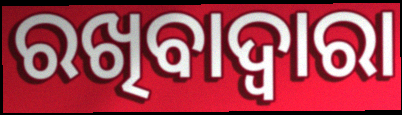
ରଖିବାଦ୍ୱାରା